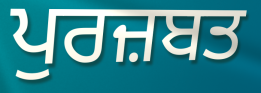
ਪੁਰਜ਼ਬਤ